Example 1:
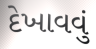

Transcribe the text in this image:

દેખાવવું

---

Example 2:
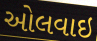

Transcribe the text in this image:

ઓલવાઇ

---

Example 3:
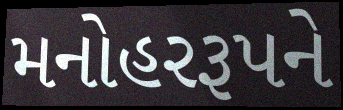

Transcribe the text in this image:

મનોહરરૂપને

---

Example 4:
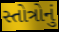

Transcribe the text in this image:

સ્તોત્રોનું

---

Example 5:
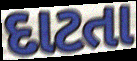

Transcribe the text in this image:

દાટતા